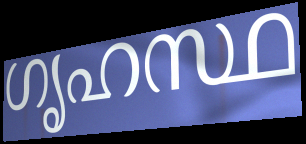
ഗൃഹസ്ഥ